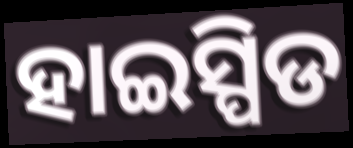
ହାଇସ୍ପିଡ